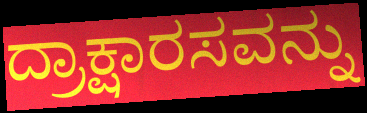
ದ್ರಾಕ್ಷಾರಸವನ್ನು